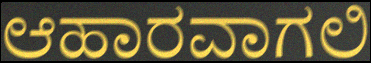
ಆಹಾರವಾಗಲಿ